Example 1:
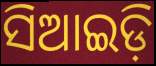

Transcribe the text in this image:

ସିଆଇଡ଼ି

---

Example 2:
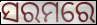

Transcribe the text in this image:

ସରମରେ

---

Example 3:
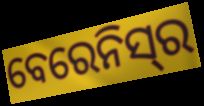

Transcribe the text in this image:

ବେରେନିସ୍‌ର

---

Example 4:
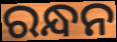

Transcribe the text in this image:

ରନ୍ଧନ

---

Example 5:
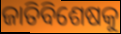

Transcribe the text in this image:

ଜାତିବିଶେଷକୁ